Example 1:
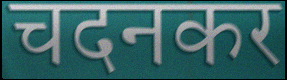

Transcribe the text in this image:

चदनकर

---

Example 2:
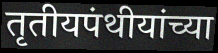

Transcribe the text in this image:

तृतीयपंथीयांच्या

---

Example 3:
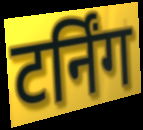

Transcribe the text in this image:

टर्निंग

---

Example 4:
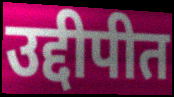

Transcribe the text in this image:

उद्दीपीत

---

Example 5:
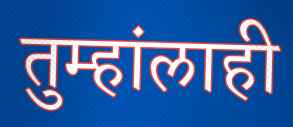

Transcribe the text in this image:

तुम्हांलाही